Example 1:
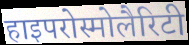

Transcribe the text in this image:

हाइपरोस्मोलैरिटी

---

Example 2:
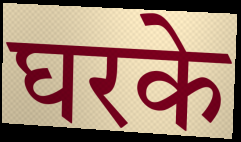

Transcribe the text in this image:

घरके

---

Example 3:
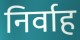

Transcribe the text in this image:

निर्वाह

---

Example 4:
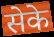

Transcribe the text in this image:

सेके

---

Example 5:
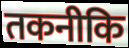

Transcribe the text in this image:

तकनीकि